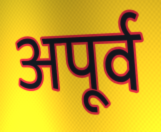
अपूर्व